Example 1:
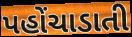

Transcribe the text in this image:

પહોંચાડાતી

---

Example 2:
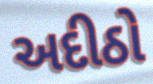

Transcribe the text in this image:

અદીઠો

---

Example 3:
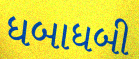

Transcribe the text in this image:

ધબાધબી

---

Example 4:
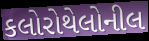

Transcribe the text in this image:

કલોરોથેલોનીલ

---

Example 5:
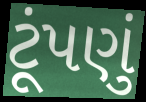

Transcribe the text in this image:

ટૂંપણું